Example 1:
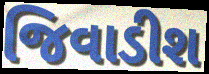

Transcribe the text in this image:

જિવાડીશ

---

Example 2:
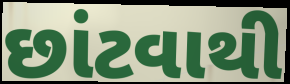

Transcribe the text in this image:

છાંટવાથી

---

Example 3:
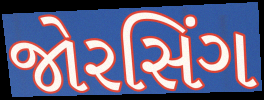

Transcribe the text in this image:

જોરસિંગ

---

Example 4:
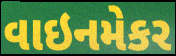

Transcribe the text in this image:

વાઇનમેકર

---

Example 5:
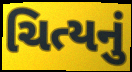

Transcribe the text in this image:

ચિત્યનું